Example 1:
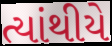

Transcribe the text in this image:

ત્યાંથીયે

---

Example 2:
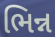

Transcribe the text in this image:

ભિન્ન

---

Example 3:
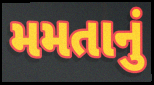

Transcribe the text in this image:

મમતાનું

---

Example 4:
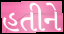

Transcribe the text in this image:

હતીને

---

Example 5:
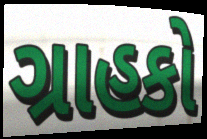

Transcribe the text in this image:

ગ્રાહકો